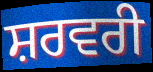
ਸ਼ਰਵਰੀ